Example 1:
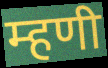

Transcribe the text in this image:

म्हणी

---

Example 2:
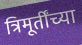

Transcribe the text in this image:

त्रिमूर्तींच्या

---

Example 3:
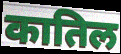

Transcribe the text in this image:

कातिल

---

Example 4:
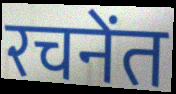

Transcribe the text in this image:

रचनेंत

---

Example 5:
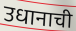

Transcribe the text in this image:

उधानाची